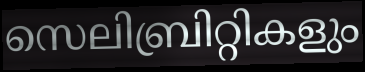
സെലിബ്രിറ്റികളും